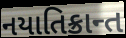
નયાતિક્રાન્ત